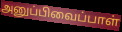
அனுப்பிவைப்பாள்